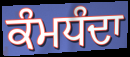
ਕੰਮਧੰਦਾ